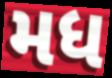
મધ